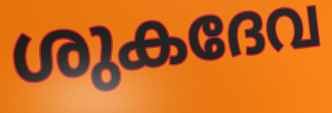
ശുകദേവ